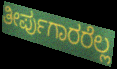
ತೀರ್ಪುಗಾರರೆಲ್ಲ